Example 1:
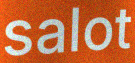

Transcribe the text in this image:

salot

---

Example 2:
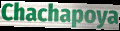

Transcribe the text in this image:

Chachapoya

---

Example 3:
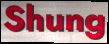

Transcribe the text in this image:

Shung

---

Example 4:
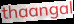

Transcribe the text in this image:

thaangal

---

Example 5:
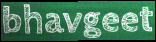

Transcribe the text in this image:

bhavgeet